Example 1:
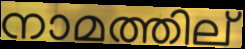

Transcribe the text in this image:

നാമത്തില്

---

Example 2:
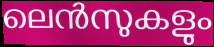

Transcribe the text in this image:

ലെൻസുകളും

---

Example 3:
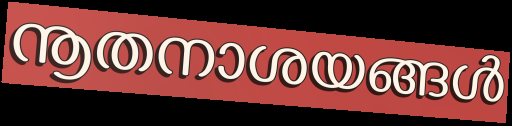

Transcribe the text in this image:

നൂതനാശയങ്ങൾ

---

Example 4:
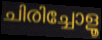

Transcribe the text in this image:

ചിരിച്ചോളൂ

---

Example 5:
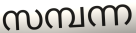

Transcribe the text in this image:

സമ്പന്ന